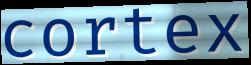
cortex